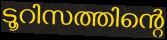
ടൂറിസത്തിന്റെ